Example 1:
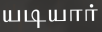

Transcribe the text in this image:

யடியார்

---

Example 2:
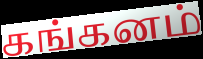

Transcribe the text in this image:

கங்கனம்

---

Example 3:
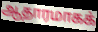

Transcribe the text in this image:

ஆதாரமாகக்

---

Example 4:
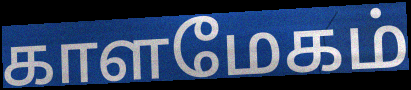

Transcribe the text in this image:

காளமேகம்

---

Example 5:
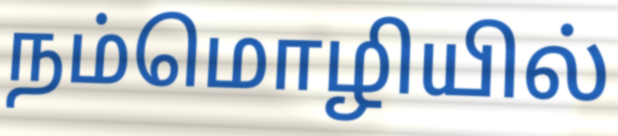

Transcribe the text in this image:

நம்மொழியில்